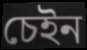
চেইন